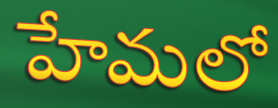
హేమలో